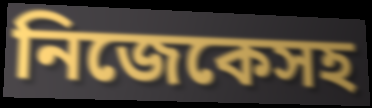
নিজেকেসহ